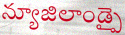
న్యూజిలాండ్పై